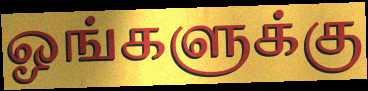
ஓங்களுக்கு